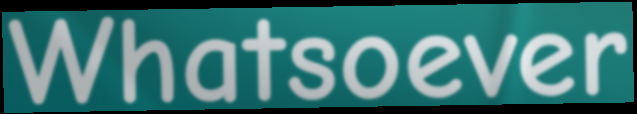
Whatsoever